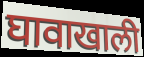
घावाखाली